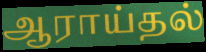
ஆராய்தல்